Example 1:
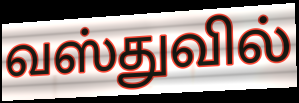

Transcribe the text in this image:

வஸ்துவில்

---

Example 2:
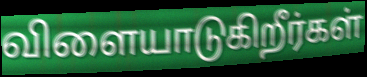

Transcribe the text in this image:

விளையாடுகிறீர்கள்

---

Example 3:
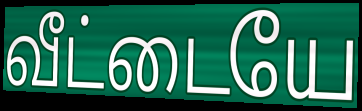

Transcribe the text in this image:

வீட்டையே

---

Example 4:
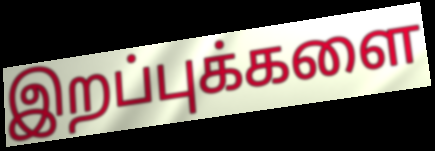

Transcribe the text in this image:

இறப்புக்களை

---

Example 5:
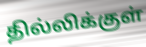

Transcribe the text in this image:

தில்லிக்குள்